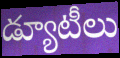
డ్యూటీలు